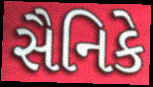
સૈનિકે